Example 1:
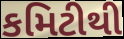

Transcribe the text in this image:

કમિટીથી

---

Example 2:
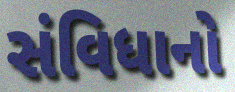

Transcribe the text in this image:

સંવિધાનો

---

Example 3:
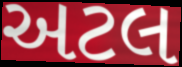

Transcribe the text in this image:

અટલ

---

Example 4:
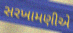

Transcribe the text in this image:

સરખામણીએ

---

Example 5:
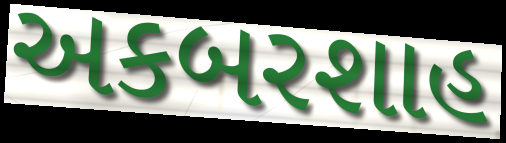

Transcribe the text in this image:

અકબરશાહ